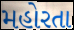
મહોરતા